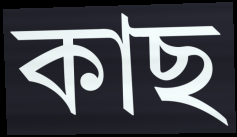
কাছ